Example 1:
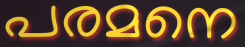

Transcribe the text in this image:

പരമനെ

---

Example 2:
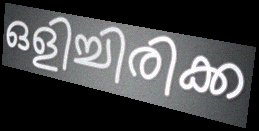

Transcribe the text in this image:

ഒളിച്ചിരിക്ക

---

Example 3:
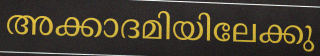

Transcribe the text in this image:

അക്കാദമിയിലേക്കു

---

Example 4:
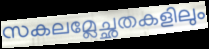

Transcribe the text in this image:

സകലമ്ലേച്ഛതകളിലും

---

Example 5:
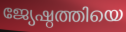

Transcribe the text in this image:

ജ്യേഷ്ഠത്തിയെ